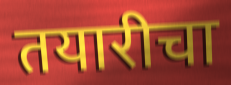
तयारीचा